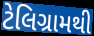
ટેલિગ્રામથી